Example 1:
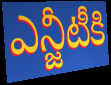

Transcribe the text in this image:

ఎన్జీటీకి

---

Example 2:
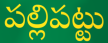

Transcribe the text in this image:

పల్లిపట్టు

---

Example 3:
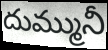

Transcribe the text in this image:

దుమ్మునీ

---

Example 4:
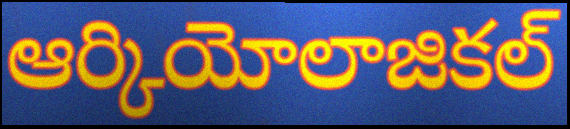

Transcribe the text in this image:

ఆర్కియోలాజికల్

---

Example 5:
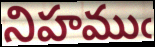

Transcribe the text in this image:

నిహముఁ